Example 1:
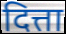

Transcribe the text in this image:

दित्ता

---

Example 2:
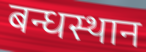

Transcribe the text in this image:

बन्धस्थान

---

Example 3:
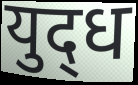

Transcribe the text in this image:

युद्‍ध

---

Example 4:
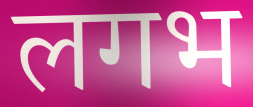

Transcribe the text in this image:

लगभ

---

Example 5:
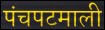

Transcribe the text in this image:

पंचपटमाली